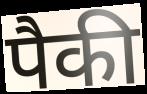
पैकी